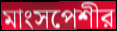
মাংসপেশীর